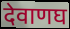
देवाणघ